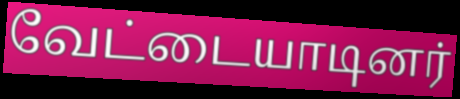
வேட்டையாடினர்